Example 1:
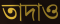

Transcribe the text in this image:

তাদাও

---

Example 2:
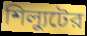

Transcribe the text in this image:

শিল্যুটের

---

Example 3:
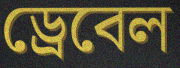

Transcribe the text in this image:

ড্রেবেল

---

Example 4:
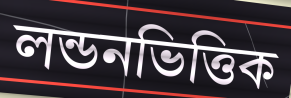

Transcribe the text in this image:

লন্ডনভিত্তিক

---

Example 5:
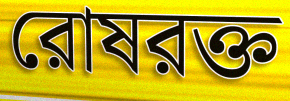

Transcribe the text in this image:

রোষরক্ত